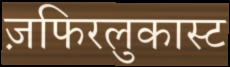
ज़फिरलुकास्ट